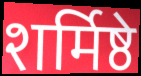
शर्मिष्ठे